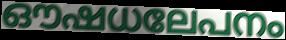
ഔഷധലേപനം